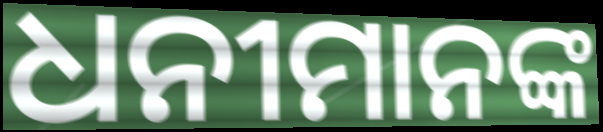
ଧନୀମାନଙ୍କ